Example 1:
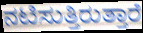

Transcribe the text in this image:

ನಟಿಸುತ್ತಿರುತ್ತಾರೆ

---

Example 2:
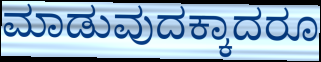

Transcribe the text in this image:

ಮಾಡುವುದಕ್ಕಾದರೂ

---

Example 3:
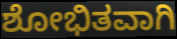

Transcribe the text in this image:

ಶೋಭಿತವಾಗಿ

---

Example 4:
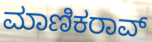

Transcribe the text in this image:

ಮಾಣಿಕರಾವ್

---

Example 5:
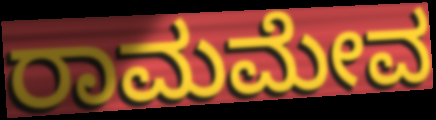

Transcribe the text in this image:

ರಾಮಮೇವ